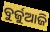
ବୁର୍ଜୁଆଜି